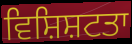
ਵਿਸ਼ਿਸ਼ਟਤਾ